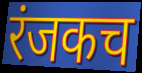
रंजकच